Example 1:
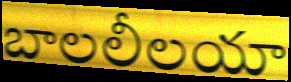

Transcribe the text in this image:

బాలలీలయా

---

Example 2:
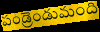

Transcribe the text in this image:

పండ్రెండుమంది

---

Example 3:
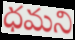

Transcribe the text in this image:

ధమని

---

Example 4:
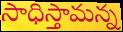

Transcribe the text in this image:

సాధిస్తామన్న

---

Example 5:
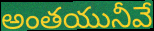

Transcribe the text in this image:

అంతయునీవే